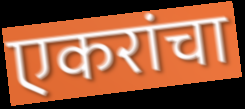
एकरांचा